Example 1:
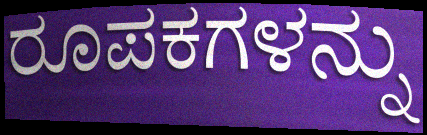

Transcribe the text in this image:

ರೂಪಕಗಳನ್ನು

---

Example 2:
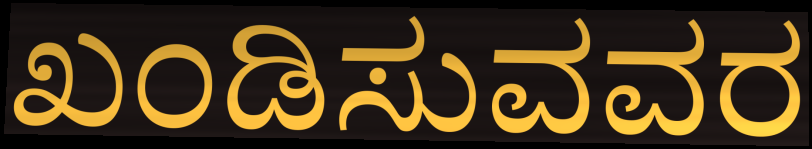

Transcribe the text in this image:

ಖಂಡಿಸುವವರ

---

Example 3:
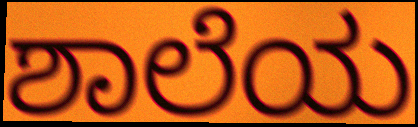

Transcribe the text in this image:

ಶಾಲೆಯ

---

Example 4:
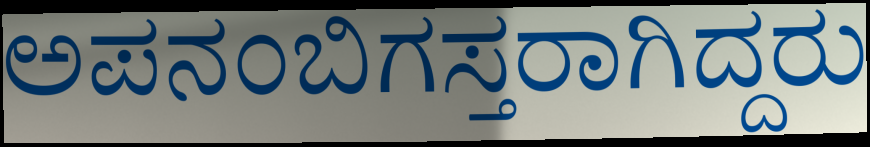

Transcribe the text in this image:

ಅಪನಂಬಿಗಸ್ತರಾಗಿದ್ದರು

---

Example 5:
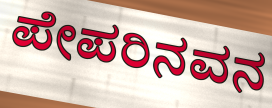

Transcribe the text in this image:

ಪೇಪರಿನವನ